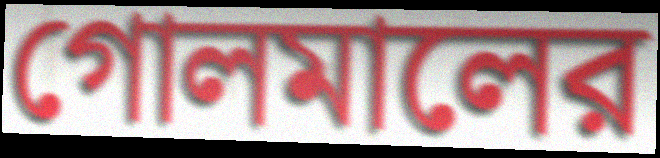
গোলমালের